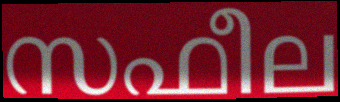
സഫീല